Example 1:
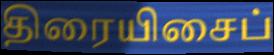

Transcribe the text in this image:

திரையிசைப்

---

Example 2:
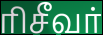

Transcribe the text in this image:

ரிசீவர்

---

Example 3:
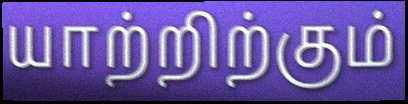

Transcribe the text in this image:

யாற்றிற்கும்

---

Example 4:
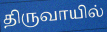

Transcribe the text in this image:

திருவாயில்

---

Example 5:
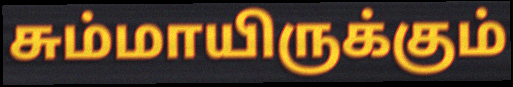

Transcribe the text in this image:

சும்மாயிருக்கும்